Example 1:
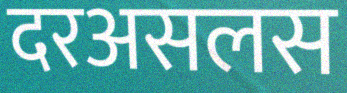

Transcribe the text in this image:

दरअसलस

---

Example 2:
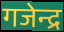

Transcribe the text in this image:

गजेन्द्र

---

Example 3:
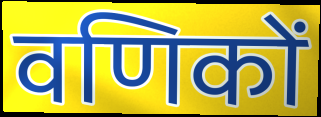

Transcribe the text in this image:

वणिकों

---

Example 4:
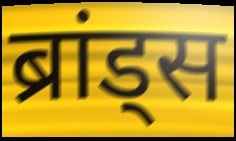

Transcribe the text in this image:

ब्रांड्स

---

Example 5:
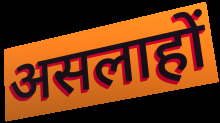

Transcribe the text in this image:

असलाहों